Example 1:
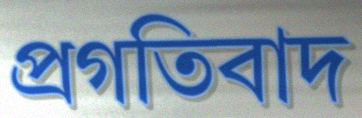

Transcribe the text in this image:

প্রগতিবাদ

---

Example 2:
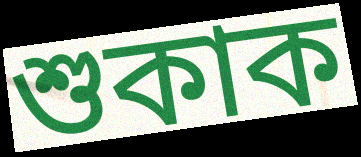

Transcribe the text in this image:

শুকাক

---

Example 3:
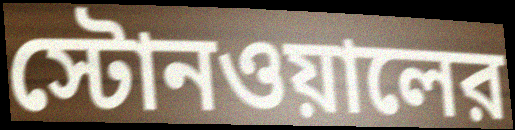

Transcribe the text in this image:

স্টোনওয়ালের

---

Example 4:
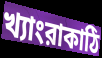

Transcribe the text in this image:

খ্যাংরাকাঠি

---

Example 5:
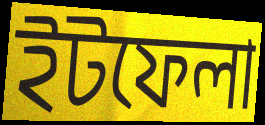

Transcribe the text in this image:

ইটফেলা